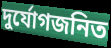
দুর্যোগজনিত